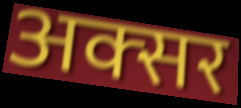
अक्‍सर